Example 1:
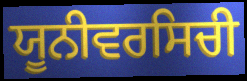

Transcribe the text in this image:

ਯੂਨੀਵਰਸਿਚੀ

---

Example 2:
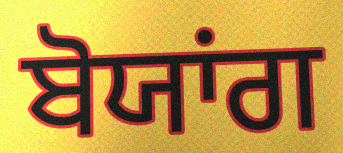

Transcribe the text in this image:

ਬੋਯਾਂਗ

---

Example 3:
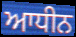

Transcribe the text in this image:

ਆਧੀਨ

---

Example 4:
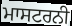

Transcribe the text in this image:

ਮਾਸਟਰਨੀ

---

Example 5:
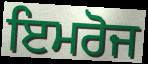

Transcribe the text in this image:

ਇਮਰੋਜ